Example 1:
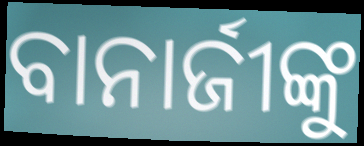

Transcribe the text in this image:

ବାନାର୍ଜୀଙ୍କୁ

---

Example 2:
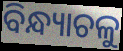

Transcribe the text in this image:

ବିନ୍ଧ୍ୟାଚଳୁ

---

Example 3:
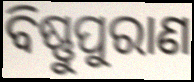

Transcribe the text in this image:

ବିଷ୍ଣୁପୁରାଣ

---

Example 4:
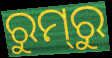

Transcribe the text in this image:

ରୁମ୍‌ରୁ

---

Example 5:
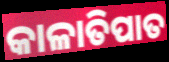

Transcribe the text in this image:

କାଳାତିପାତ